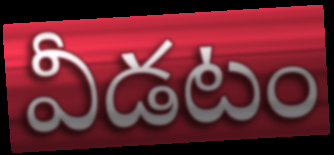
వీడటం